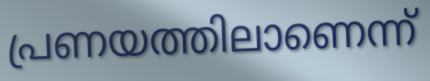
പ്രണയത്തിലാണെന്ന്